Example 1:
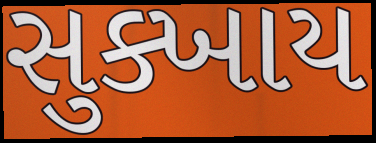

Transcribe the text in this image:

સુક્ખાય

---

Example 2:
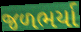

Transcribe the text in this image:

જળભર્યા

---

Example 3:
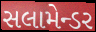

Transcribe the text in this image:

સલામેન્ડર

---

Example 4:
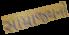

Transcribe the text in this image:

સામ્રાજ્યનો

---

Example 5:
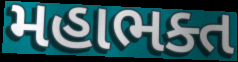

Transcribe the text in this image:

મહાભક્ત